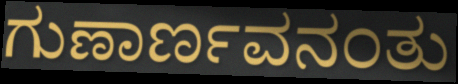
ಗುಣಾರ್ಣವನಂತು